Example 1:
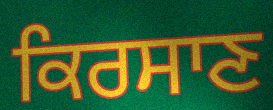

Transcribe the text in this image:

ਕਿਰਸਾਣ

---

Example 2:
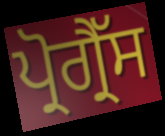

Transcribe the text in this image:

ਪ੍ਰੋਗ੍ਰੈੱਸ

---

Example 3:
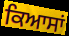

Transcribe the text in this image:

ਕਿਆਸਾਂ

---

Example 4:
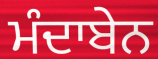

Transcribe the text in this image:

ਮੰਦਾਬੇਨ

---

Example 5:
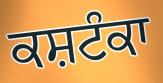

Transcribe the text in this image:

ਕਸ਼ਟੰਕਾ